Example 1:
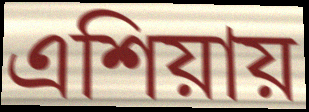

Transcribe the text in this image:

এশিয়ায়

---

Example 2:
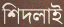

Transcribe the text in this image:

শিদলাই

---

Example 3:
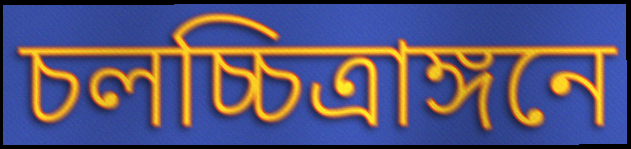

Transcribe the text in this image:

চলচ্চিত্রাঙ্গনে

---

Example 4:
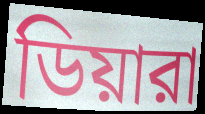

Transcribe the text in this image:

ডিয়ারা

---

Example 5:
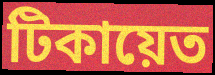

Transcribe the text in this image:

টিকায়েত